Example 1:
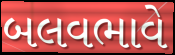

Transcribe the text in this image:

બલવભાવે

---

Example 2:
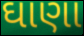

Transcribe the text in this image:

ઘાણા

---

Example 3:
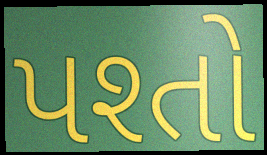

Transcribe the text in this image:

પશ્તો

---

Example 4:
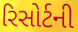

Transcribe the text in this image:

રિસોર્ટની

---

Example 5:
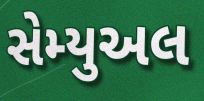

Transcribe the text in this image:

સેમ્યુઅલ